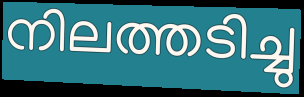
നിലത്തടിച്ചു